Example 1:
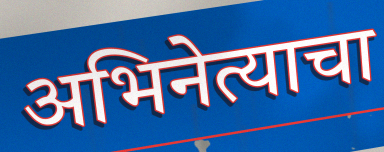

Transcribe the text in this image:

अभिनेत्याचा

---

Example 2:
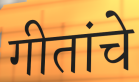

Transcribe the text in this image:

गीतांचे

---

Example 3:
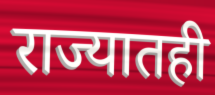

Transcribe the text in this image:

राज्यातही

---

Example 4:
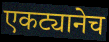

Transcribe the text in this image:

एकट्यानेच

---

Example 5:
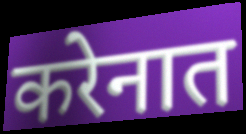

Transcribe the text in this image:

करेनात